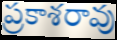
ప్రకాశరావు